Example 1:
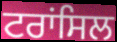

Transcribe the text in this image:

ਟਰਾਂਸਿਲ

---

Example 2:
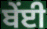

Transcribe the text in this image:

ਬੇਂਈ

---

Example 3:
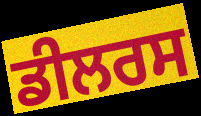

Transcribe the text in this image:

ਡੀਲਰਸ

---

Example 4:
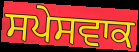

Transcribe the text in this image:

ਸਪੇਸਵਾਕ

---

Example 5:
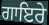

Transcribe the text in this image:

ਗਾਇਰੇ